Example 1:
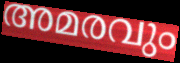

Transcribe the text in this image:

അമരവും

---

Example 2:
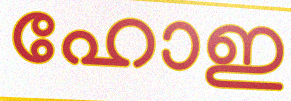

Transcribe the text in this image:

ഹോഇ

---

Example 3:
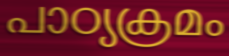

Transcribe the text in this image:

പാഠ്യക്രമം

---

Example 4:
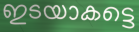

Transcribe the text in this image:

ഇടയാകട്ടെ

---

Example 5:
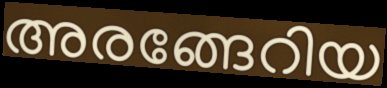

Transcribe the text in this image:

അരങ്ങേറിയ